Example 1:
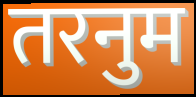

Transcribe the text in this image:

तरनुम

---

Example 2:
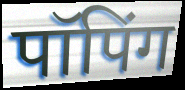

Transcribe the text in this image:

पॉपिंग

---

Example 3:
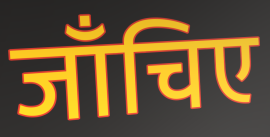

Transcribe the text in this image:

जाँचिए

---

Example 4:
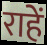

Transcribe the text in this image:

राहें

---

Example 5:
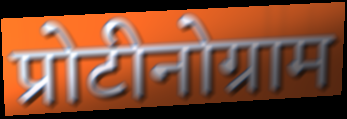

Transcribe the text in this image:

प्रोटीनोग्राम